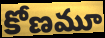
కోణమూ